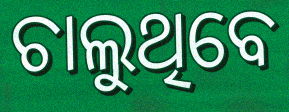
ଚାଲୁଥିବେ